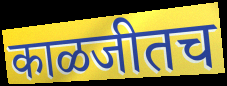
काळजीतच